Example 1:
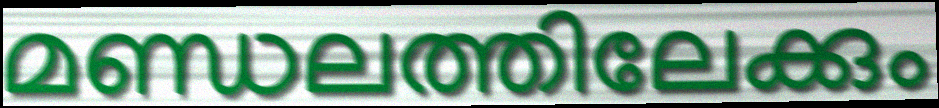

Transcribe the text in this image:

മണ്ഡലത്തിലേക്കും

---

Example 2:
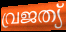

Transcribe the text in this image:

വ്രജത്യ്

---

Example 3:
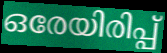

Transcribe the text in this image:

ഒരേയിരിപ്പ്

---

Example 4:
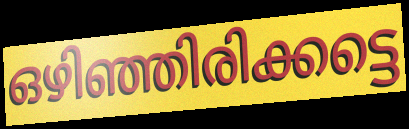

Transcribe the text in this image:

ഒഴിഞ്ഞിരിക്കട്ടെ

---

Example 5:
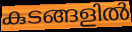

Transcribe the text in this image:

കുടങ്ങളിൽ